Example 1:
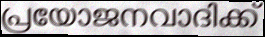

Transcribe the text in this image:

പ്രയോജനവാദിക്ക്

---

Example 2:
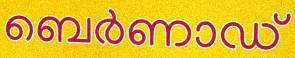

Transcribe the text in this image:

ബെർണാഡ്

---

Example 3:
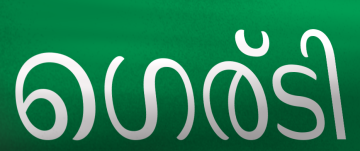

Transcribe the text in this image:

ഗെര്ടി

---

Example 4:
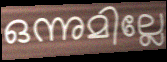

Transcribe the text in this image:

ഒന്നുമില്ലേ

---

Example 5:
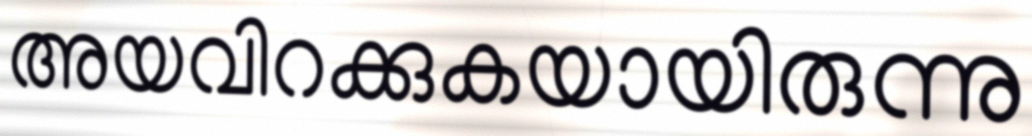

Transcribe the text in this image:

അയവിറക്കുകയായിരുന്നു